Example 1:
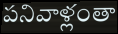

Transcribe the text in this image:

పనివాళ్లంతా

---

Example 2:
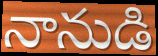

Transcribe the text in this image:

నానుడి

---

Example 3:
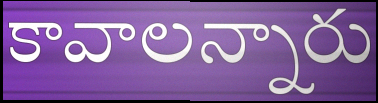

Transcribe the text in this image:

కావాలన్నారు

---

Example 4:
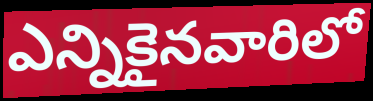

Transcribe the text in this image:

ఎన్నికైనవారిలో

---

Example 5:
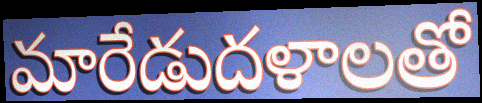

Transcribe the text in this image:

మారేడుదళాలతో